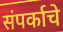
संपर्काचे